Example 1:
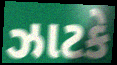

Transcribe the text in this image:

ઝાટકે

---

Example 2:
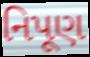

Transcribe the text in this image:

નિપૂણ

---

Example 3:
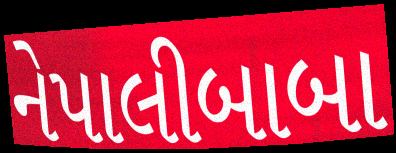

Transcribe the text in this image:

નેપાલીબાબા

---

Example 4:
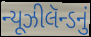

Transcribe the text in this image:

ન્યૂઝીલૅન્ડનું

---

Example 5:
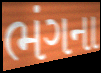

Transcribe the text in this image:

ભંગના